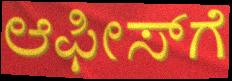
ಆಫೀಸ್‍ಗೆ